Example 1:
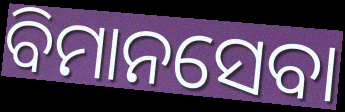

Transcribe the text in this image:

ବିମାନସେବା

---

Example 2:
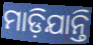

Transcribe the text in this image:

ମାଡ଼ିଯାନ୍ତି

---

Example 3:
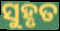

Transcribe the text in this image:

ସୁହୃତ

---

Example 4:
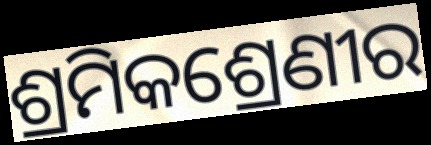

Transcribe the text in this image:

ଶ୍ରମିକଶ୍ରେଣୀର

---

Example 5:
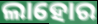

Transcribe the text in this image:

ଲାହୋର